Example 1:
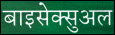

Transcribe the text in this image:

बाइसेक्सुअल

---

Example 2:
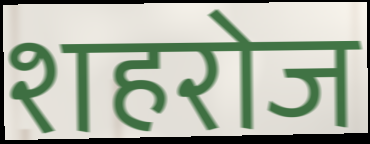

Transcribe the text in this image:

शहरोज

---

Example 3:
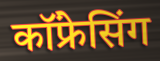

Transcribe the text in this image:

कॉंफ्रेसिंग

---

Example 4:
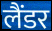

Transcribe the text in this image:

लैंडर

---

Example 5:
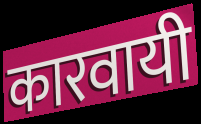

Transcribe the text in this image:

कारवायी